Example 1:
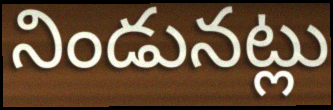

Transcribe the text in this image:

నిండునట్లు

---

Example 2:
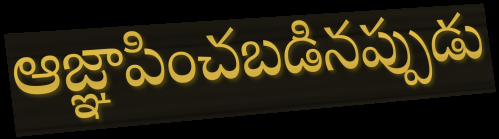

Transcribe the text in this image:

ఆజ్ఞాపించబడినప్పుడు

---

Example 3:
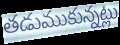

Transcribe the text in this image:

తడుముకున్నట్లు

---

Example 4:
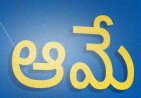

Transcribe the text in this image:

ఆమే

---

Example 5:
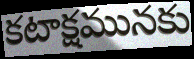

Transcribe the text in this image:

కటాక్షమునకు